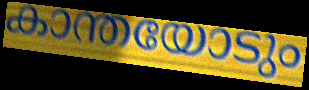
കാന്തയോടും